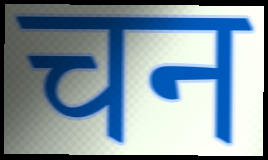
चन